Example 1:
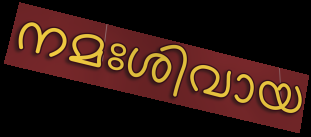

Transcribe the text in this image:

നമഃശിവായ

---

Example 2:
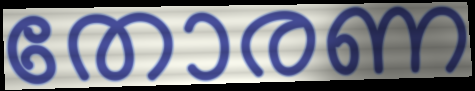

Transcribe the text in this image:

തോരണ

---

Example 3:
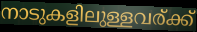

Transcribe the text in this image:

നാടുകളിലുള്ളവര്ക്ക്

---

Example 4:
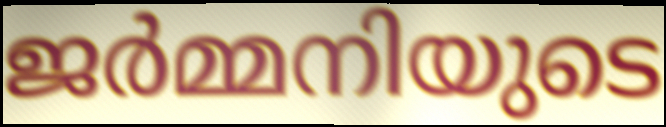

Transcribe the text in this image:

ജർമ്മനിയുടെ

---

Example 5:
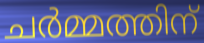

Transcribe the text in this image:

ചർമ്മത്തിന്